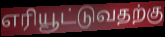
எரியூட்டுவதற்கு